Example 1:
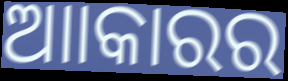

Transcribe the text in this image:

ଆାକାରର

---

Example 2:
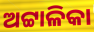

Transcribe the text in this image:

ଅଟ୍ଟାଳିକା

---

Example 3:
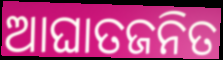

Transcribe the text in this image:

ଆଘାତଜନିତ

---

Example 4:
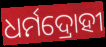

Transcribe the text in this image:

ଧର୍ମଦ୍ରୋହୀ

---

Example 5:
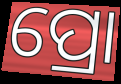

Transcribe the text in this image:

ପ୍ରୋ